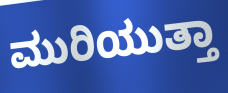
ಮುರಿಯುತ್ತಾ